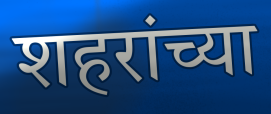
शहरांच्या